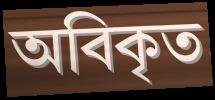
অবিকৃত